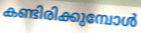
കണ്ടിരിക്കുമ്പോൾ